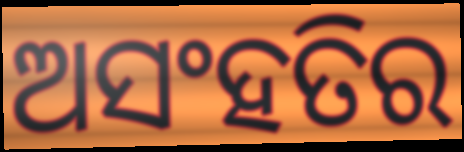
ଅସଂହତିର